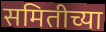
समितीच्‍या